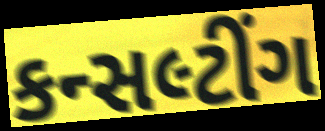
કન્સલ્ટીંગ